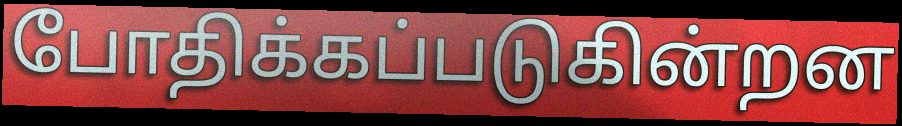
போதிக்கப்படுகின்றன